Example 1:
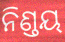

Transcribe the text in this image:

ନିଣ୍ଡୟ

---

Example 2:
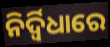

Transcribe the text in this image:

ନିର୍ଦ୍ୱିଧାରେ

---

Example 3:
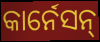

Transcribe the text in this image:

କାର୍ନେସନ୍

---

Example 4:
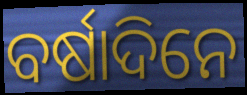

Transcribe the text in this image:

ବର୍ଷାଦିନେ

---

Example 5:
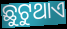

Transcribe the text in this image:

ଛୁଟୁଥାଏ